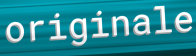
originale